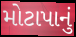
મોટાપાનું